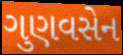
ગુણવસેન